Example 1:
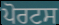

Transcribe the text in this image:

ਪੋਰਟਸ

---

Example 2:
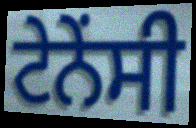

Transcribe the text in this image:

ਟੇਨੇਂਸੀ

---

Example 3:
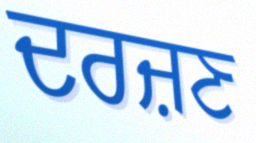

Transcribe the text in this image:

ਦਰਜ਼ਣ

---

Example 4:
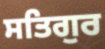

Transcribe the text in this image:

ਸਤਿਗੁਰ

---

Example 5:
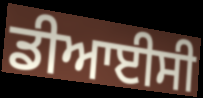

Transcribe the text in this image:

ਡੀਆਈਸੀ